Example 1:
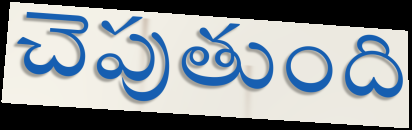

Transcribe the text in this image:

చెపుతుంది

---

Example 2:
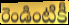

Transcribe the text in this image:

రెండింటికీ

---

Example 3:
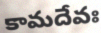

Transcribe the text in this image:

కామదేవః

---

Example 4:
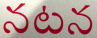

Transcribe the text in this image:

నటన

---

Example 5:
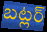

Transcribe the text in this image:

బట్లర్